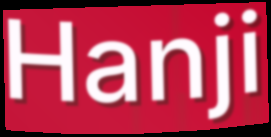
Hanji